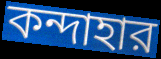
কন্দাহার